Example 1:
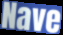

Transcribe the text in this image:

Nave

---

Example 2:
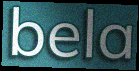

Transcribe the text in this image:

bela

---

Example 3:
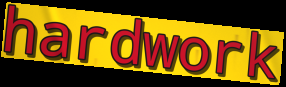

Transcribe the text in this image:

hardwork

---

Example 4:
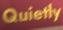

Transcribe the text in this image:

Quietly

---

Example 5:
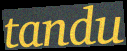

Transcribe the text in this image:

tandu